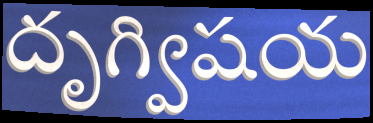
దృగ్విషయ